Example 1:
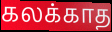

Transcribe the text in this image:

கலக்காத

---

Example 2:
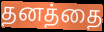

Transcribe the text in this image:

தனத்தை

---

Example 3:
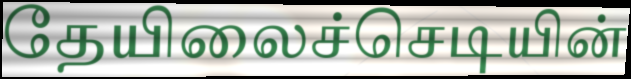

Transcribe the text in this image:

தேயிலைச்செடியின்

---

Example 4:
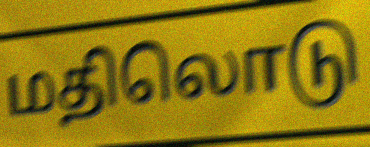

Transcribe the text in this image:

மதிலொடு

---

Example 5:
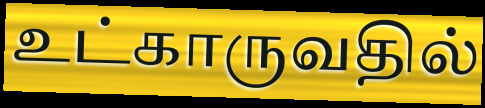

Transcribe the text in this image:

உட்காருவதில்